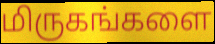
மிருகங்களை